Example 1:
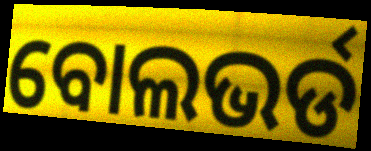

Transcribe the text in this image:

ବୋଲଭର୍ଡ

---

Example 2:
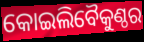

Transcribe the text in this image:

କୋଇଲିବୈକୁଣ୍ଠର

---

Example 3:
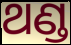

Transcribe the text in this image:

ଥଣ୍ଡ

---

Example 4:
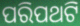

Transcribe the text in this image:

ପରିପଥଟି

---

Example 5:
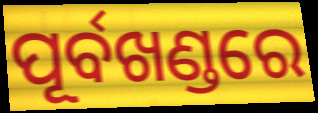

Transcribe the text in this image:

ପୂର୍ବଖଣ୍ଡରେ